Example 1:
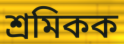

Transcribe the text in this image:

শ্ৰমিকক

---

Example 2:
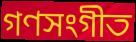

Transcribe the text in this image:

গণসংগীত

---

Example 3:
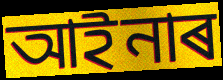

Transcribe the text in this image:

আইনাৰ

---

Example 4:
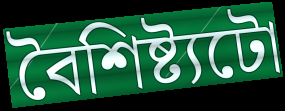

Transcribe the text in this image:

বৈশিষ্ট্যটো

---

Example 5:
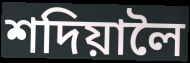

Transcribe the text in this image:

শদিয়ালৈ